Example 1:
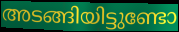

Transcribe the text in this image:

അടങ്ങിയിട്ടുണ്ടോ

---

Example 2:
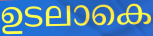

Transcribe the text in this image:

ഉടലാകെ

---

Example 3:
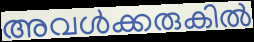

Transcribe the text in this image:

അവൾക്കരുകിൽ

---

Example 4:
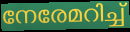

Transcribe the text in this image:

നേരേമറിച്ച്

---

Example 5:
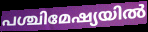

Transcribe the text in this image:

പശ്ചിമേഷ്യയിൽ